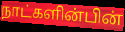
நாட்களின்பின்